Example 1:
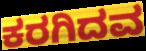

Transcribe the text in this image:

ಕರಗಿದವ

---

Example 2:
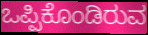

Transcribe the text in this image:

ಒಪ್ಪಿಕೊಂಡಿರುವ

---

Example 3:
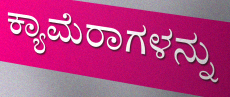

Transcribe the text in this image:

ಕ್ಯಾಮೆರಾಗಳನ್ನು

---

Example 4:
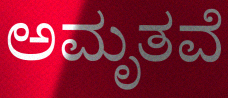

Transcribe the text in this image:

ಅಮೃತವೆ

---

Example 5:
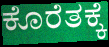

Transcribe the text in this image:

ಕೊರೆತಕ್ಕೆ